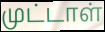
முட்டாள்